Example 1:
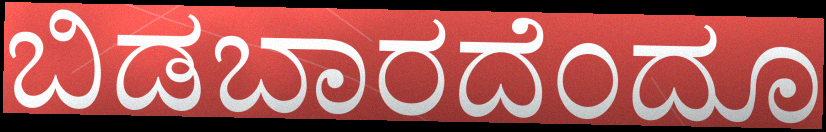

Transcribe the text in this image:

ಬಿಡಬಾರದೆಂದೂ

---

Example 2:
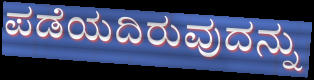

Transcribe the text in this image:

ಪಡೆಯದಿರುವುದನ್ನು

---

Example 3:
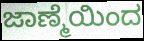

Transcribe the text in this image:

ಜಾಣ್ಮೆಯಿಂದ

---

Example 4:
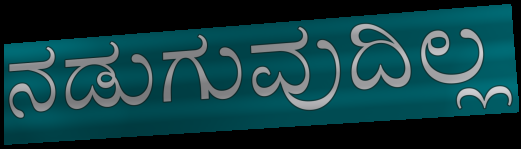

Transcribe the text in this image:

ನಡುಗುವುದಿಲ್ಲ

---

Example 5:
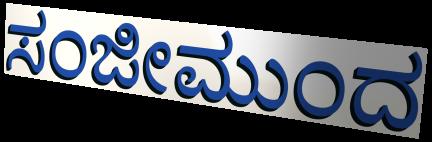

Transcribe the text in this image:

ಸಂಜೀಮುಂದ